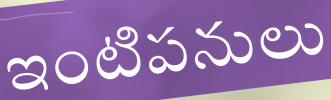
ఇంటిపనులు